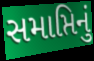
સમાપ્તિનું